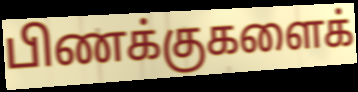
பிணக்குகளைக்